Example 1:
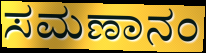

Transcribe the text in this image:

ಸಮಣಾನಂ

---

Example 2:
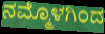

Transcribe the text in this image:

ನಮ್ಮೊಳಗಿಂದ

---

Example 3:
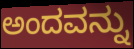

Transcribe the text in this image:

ಅಂದವನ್ನು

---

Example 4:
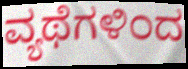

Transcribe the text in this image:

ವ್ಯಥೆಗಳಿಂದ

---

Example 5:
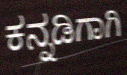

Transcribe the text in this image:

ಕನ್ನಡಿಗಾಗಿ